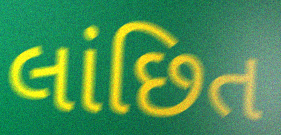
લાંછિત